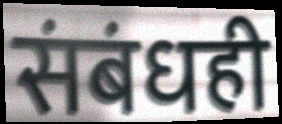
संबंधही